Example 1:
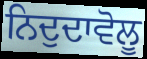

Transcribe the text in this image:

ਨਿਦੁਦਾਵੋਲੂ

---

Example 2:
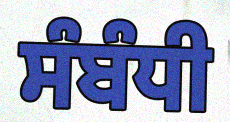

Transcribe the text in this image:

ਸੰਬੰਧੀ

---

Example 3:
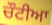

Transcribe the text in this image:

ਚੌਟੀਆ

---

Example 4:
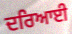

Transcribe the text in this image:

ਦਰਿਆਈ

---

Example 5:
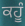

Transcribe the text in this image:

ਕਹੂੰ